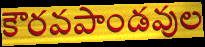
కౌరవపాండవుల